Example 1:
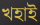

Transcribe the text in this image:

খহাই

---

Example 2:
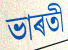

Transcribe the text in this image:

ভাৰতী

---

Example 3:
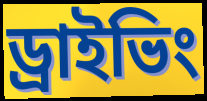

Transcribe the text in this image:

ড্ৰাইভিং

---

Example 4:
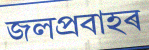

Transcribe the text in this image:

জলপ্ৰবাহৰ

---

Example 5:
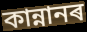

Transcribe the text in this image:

কান্নানৰ